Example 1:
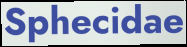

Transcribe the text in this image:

Sphecidae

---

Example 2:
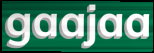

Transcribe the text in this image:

gaajaa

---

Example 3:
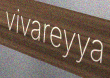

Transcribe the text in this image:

vivareyya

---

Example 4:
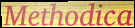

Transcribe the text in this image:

Methodica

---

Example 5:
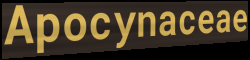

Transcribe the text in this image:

Apocynaceae